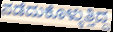
ನಡೆದುಕೊಳ್ಳುತ್ತಿದ್ದ